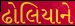
ઢોલિયાને